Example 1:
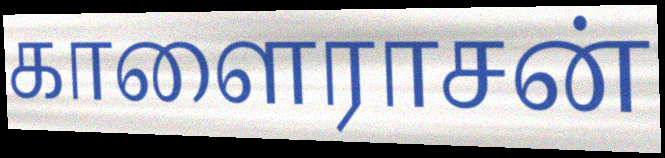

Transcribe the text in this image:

காளைராசன்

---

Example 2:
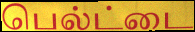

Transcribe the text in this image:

பெல்ட்டை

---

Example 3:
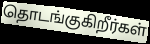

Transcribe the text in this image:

தொடங்குகிறீர்கள்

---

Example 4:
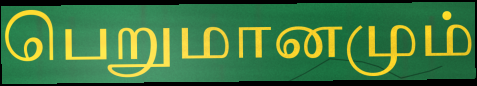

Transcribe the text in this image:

பெறுமானமும்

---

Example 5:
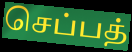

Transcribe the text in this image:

செப்பத்